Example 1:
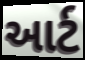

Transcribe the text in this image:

આર્ટ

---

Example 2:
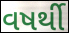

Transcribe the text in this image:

વષર્થી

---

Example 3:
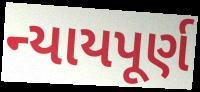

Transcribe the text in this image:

ન્યાયપૂર્ણ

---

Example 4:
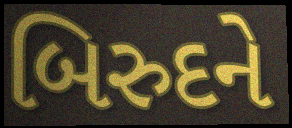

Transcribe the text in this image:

બિરુદને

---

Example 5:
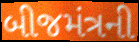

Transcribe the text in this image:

બીજમંત્રની